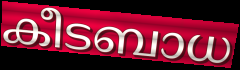
കീടബാധ